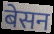
बेसन